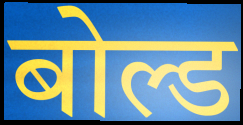
बोल्ड